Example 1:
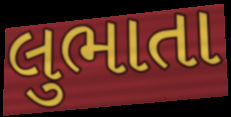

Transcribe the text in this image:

લુભાતા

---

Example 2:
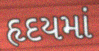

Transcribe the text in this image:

હૃદયમાં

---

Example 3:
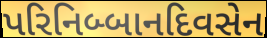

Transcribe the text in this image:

પરિનિબ્બાનદિવસેન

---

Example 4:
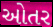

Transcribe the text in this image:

ઓતર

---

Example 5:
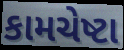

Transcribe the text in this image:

કામચેષ્ટા